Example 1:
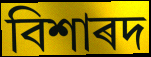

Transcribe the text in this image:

বিশাৰদ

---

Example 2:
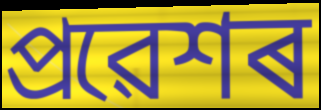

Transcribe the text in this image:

প্ৰৱেশৰ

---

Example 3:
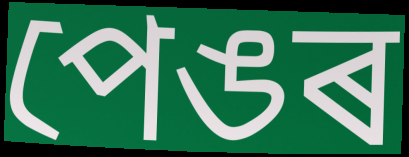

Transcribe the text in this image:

পেঙৰ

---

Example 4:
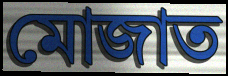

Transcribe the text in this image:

মোজাত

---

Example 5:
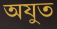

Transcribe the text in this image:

অযুত